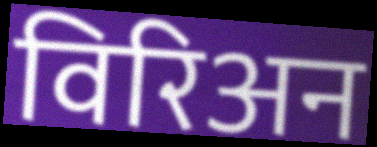
विरिअन